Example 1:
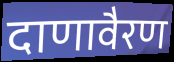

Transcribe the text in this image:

दाणावैरण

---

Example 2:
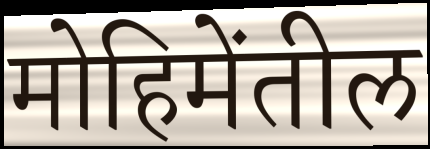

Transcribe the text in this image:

मोहिमेंतील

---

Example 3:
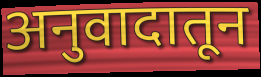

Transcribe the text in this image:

अनुवादातून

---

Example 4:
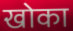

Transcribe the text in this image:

खोका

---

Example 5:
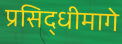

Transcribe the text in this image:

प्रसिद्धीमागे